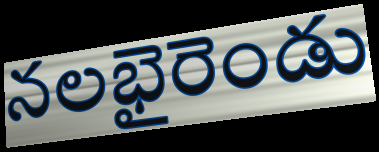
నలభైరెండు